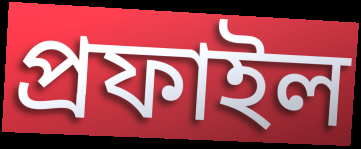
প্ৰফাইল